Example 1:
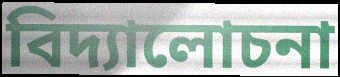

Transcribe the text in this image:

বিদ্যালোচনা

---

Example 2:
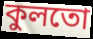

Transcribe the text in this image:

কুলতো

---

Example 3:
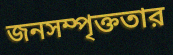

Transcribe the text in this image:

জনসম্পৃক্ততার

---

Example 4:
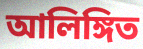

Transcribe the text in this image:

আলিঙ্গিত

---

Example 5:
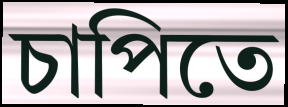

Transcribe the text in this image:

চাপিতে